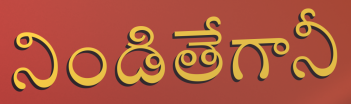
నిండితేగానీ